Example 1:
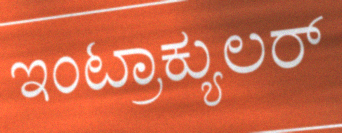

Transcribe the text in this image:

ಇಂಟ್ರಾಕ್ಯುಲರ್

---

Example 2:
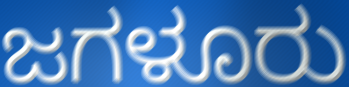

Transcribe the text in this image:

ಜಗಳೂರು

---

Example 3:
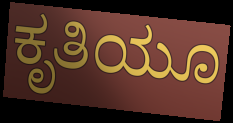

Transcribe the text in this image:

ಕೃತಿಯೂ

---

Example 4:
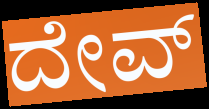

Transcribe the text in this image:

ದೇವ್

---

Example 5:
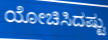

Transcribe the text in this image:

ಯೋಚಿಸಿದಷ್ಟು